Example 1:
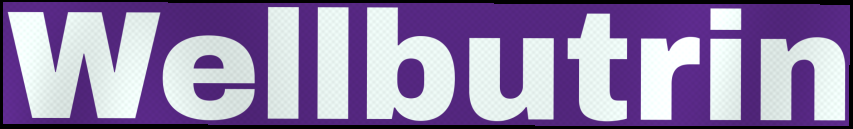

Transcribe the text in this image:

Wellbutrin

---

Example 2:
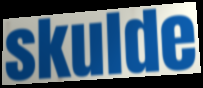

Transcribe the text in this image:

skulde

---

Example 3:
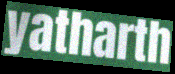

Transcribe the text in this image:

yatharth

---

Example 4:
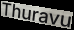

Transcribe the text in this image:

Thuravu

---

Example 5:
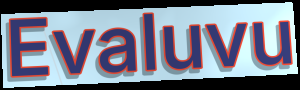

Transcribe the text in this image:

Evaluvu